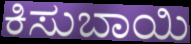
ಕಿಸುಬಾಯಿ